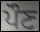
ਪੌਣ